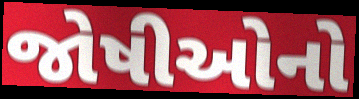
જોષીઓનો